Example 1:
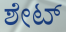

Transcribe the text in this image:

ಶೇಟ್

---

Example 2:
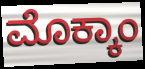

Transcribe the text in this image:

ಮೊಕ್ಕಾಂ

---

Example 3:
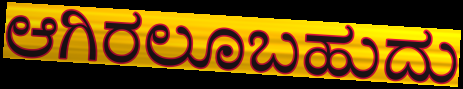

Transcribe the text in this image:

ಆಗಿರಲೂಬಹುದು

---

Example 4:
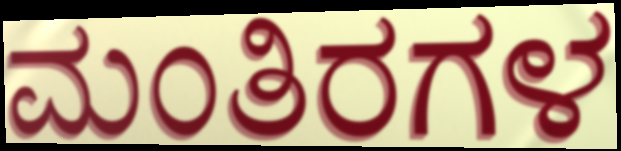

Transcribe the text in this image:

ಮಂತಿರಗಳ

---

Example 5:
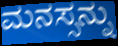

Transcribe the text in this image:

ಮನಸ್ಸನ್ನು